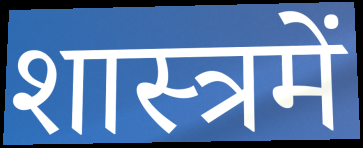
शास्त्रमें